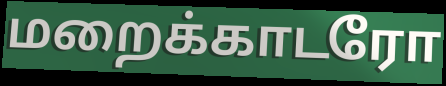
மறைக்காடரோ